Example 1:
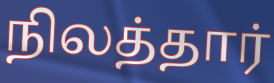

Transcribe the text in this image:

நிலத்தார்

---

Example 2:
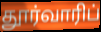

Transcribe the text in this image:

தூர்வாரிப்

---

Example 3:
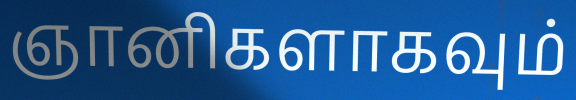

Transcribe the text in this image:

ஞானிகளாகவும்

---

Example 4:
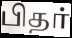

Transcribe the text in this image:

பிதர்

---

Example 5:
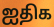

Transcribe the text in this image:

ஐதிக